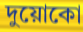
দুয়োকো